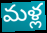
మళ్ల